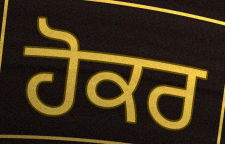
ਹੋਕਰ